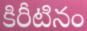
కిరీటినం